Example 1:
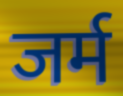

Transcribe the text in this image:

जर्म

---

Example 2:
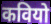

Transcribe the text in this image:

कवियो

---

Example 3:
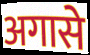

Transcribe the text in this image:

अगासे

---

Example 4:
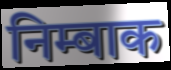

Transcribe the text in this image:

निम्बाक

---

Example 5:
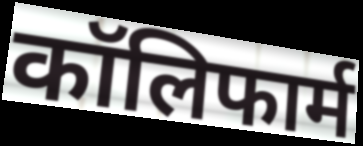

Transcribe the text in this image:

कॉलिफार्म